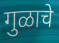
गुळाचे